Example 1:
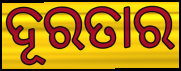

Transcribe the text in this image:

ଦୂରତାର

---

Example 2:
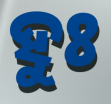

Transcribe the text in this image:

ହୁଃ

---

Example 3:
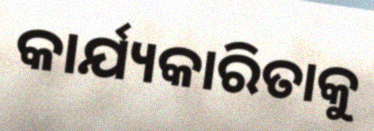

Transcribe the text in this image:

କାର୍ଯ୍ୟକାରିତାକୁ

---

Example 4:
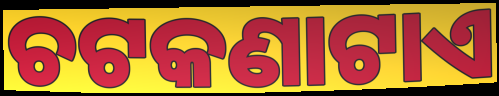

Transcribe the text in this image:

ଚଟକଣାଟାଏ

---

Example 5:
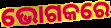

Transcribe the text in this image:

ଭୋଗକରେ